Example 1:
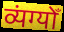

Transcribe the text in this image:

व्यंग्योँ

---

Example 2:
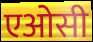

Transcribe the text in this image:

एओसी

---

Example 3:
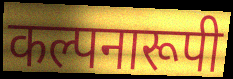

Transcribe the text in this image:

कल्पनारूपी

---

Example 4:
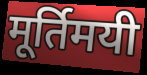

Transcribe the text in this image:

मूर्तिमयी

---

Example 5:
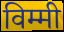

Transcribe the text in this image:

विम्मी